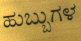
ಹುಬ್ಬುಗಳ